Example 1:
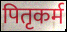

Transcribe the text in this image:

पितृकर्म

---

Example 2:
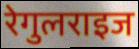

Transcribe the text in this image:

रेगुलराइज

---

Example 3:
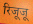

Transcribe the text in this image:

रिजूजू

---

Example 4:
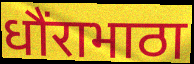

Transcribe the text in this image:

धौंराभाठा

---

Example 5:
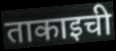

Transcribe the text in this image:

ताकाइची